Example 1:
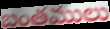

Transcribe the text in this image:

బంతములు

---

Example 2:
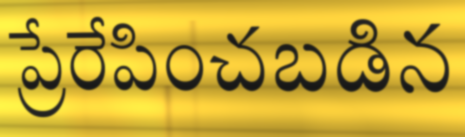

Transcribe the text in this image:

ప్రేరేపించబడిన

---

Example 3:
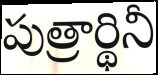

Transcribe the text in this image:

పుత్రార్థినీ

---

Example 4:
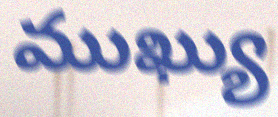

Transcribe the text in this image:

ముఖ్యు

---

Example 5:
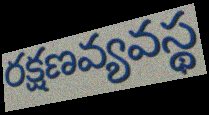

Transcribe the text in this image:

రక్షణవ్యవస్థ